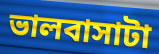
ভালবাসাটা